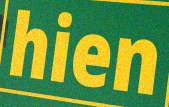
hien